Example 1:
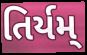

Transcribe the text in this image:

તિર્યમ્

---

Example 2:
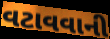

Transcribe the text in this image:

વટાવવાની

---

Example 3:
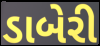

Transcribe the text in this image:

ડાબેરી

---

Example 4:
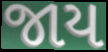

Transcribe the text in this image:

જાય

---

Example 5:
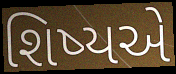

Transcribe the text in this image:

શિષ્યએ